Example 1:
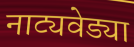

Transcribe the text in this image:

नाट्यवेड्या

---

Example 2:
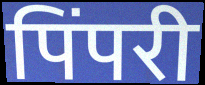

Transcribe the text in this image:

पिंपरी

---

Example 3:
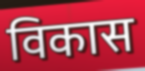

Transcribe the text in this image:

विकास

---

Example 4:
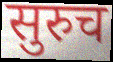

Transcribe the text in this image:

सुरुच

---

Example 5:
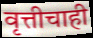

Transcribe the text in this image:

वृत्तीचाही